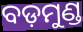
ବଡ଼ମୁଣ୍ଡ